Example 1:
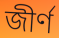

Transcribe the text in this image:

জীর্ণ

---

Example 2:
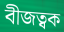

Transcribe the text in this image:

বীজত্বক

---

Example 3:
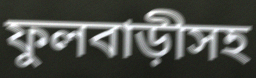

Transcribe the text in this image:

ফুলবাড়ীসহ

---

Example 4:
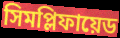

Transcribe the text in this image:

সিমপ্লিফায়েড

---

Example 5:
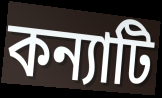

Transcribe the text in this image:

কন্যাটি